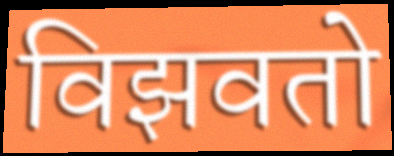
विझवतो